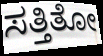
ಸತ್ತಿತೋ